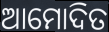
ଆମୋଦିତ